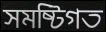
সমষ্টিগত